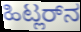
ಹಿಟ್ಲರ್‌ನ